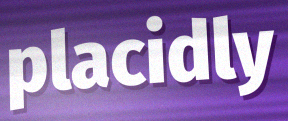
placidly